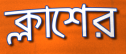
ক্লাশের